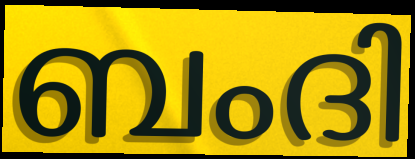
ബംദി